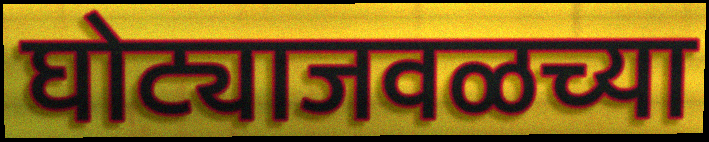
घोट्याजवळच्या